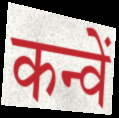
कन्वें